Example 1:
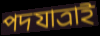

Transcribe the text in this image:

পদযাত্রাই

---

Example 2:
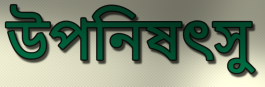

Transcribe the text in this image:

উপনিষৎসু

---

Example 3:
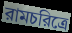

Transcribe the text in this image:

রামচরিত্রে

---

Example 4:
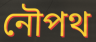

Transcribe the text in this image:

নৌপথ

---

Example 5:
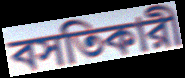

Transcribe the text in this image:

বসতিকারী